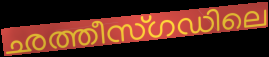
ഛത്തീസ്ഗഡിലെ